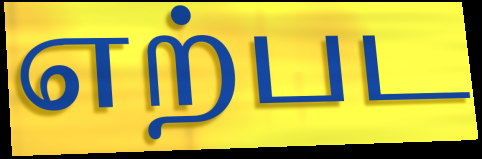
எற்பட